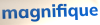
magnifique